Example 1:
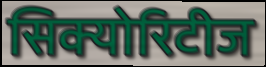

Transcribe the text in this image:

सिक्योरिटीज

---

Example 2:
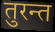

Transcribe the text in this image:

तुरन्त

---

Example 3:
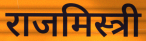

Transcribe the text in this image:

राजमिस्त्री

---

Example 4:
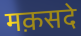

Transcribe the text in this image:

मक़सदे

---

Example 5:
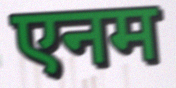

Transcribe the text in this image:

एनम